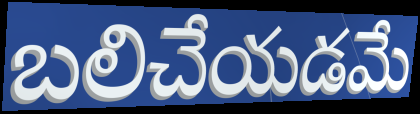
బలిచేయడమే